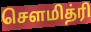
சௌமித்ரி